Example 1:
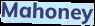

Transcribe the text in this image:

Mahoney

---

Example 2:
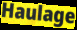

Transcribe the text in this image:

Haulage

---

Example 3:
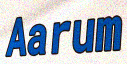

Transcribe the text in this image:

Aarum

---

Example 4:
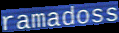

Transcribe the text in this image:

ramadoss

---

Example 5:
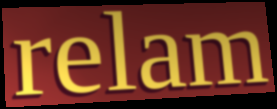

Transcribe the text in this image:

relam